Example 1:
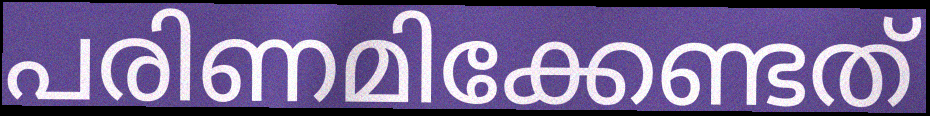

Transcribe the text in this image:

പരിണമിക്കേണ്ടത്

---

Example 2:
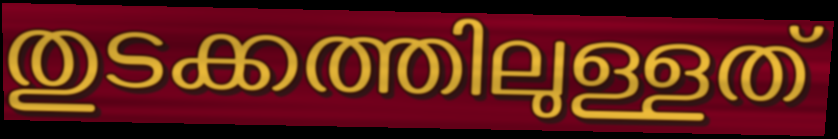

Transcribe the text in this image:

തുടക്കത്തിലുള്ളത്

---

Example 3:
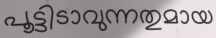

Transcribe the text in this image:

പൂട്ടിടാവുന്നതുമായ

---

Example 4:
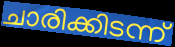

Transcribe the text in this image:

ചാരിക്കിടന്ന്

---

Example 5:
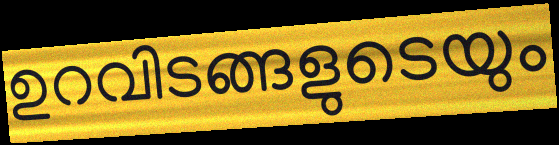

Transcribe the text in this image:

ഉറവിടങ്ങളുടെയും